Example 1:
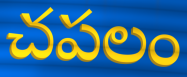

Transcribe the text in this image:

చపలం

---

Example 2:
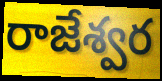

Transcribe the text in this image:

రాజేశ్వర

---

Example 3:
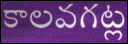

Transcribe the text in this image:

కాలవగట్ల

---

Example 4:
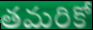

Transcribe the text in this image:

తమరికో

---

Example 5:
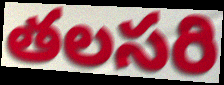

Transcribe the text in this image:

తలసరి